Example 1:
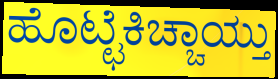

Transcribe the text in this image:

ಹೊಟ್ಟೆಕಿಚ್ಚಾಯ್ತು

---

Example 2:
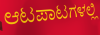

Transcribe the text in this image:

ಆಟಪಾಟಗಳಲ್ಲಿ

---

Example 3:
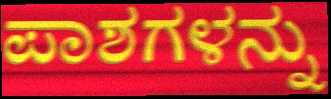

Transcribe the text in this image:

ಪಾಶಗಳನ್ನು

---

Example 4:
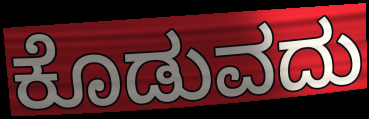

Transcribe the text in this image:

ಕೊಡುವದು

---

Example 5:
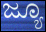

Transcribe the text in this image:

ಜ್ಯೂ